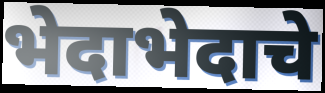
भेदाभेदाचे